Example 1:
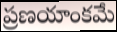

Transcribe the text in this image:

ప్రణయాంకమే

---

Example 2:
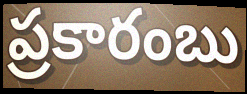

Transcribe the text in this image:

ప్రకారంబు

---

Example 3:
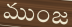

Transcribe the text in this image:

ముంజ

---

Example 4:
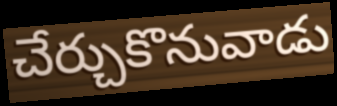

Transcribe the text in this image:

చేర్చుకొనువాడు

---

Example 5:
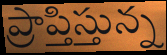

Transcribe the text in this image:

ప్రాప్తిస్తున్న